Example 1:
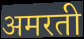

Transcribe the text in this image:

अमरती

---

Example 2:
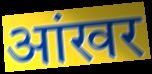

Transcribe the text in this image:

आंखर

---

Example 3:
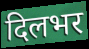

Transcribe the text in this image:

दिलभर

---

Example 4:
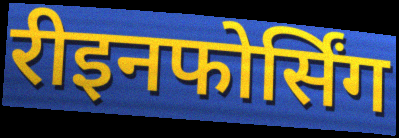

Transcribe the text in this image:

रीइनफोर्सिंग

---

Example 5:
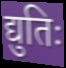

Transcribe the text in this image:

द्युतिः